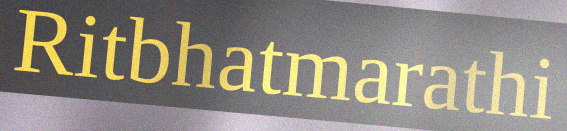
Ritbhatmarathi